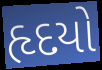
હૃદયો